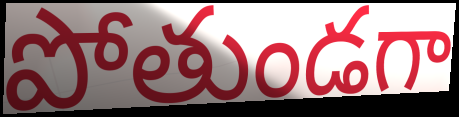
పోతుండగా